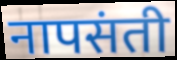
नापसंती